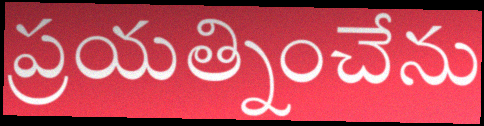
ప్రయత్నించేను